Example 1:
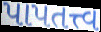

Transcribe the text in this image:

પાપતત્ત્વ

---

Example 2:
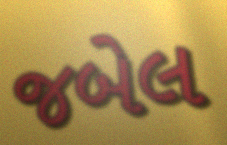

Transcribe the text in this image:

જબેલ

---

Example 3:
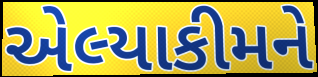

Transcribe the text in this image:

એલ્યાકીમને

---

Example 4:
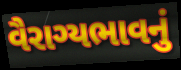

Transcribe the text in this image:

વૈરાગ્યભાવનું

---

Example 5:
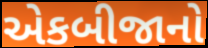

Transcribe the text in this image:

એકબીજાનો